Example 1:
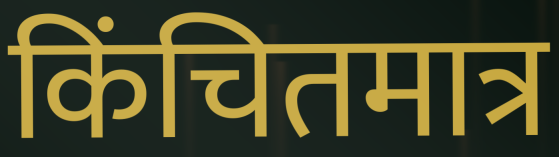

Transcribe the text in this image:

किंचितमात्र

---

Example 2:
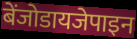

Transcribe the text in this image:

बेंजोडायजेपाइन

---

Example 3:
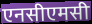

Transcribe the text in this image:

एनसीएमसी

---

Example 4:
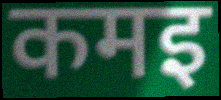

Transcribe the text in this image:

कमइ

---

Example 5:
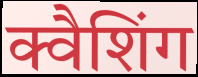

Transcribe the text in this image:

क्वैशिंग